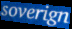
soverign